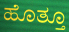
ಹೊತ್ತೂ